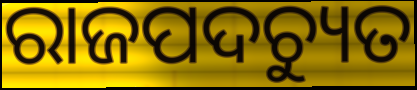
ରାଜପଦଚ୍ୟୁତ